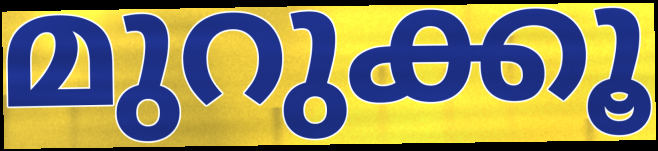
മുറുക്കൂ